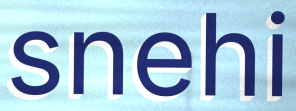
snehi